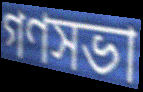
গণসভা